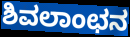
ಶಿವಲಾಂಛನ